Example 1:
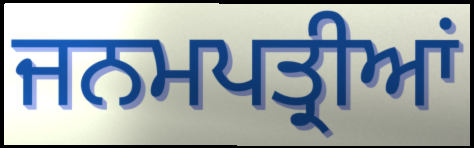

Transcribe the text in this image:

ਜਨਮਪਤ੍ਰੀਆਂ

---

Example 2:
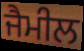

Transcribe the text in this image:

ਜੈਮੀਲ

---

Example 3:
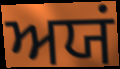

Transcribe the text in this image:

ਅਯਂ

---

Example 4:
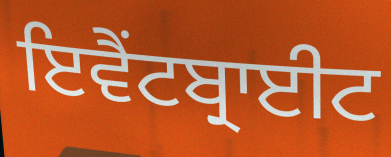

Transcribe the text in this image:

ਇਵੈਂਟਬ੍ਰਾਈਟ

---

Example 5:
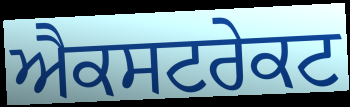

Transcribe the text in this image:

ਐਕਸਟਰੇਕਟ